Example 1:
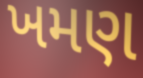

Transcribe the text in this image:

ખમણ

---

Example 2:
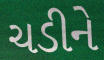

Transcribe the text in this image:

ચડીને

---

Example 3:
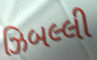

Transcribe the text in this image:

ઝિબલ્લી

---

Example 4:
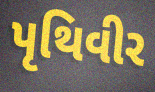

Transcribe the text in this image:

પૃથિવીર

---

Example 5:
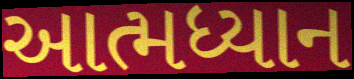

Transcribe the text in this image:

આત્મધ્યાન